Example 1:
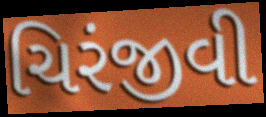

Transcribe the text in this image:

ચિરંજીવી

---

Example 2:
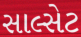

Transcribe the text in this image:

સાલ્સેટ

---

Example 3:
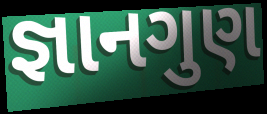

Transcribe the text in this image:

જ્ઞાનગુણ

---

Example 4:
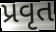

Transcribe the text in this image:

પ્રવૃત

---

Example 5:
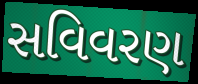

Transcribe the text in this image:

સવિવરણ